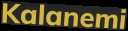
Kalanemi